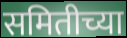
समितीच्‍या